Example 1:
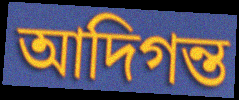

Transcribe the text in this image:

আদিগন্ত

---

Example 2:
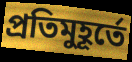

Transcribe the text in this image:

প্রতিমুহূর্তে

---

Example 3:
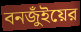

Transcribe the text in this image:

বনজুঁইয়ের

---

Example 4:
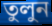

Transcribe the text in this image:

তুলুন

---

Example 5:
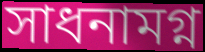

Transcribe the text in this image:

সাধনামগ্ন